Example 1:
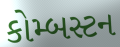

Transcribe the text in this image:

કોમ્બસ્ટન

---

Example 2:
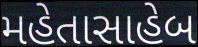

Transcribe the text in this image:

મહેતાસાહેબ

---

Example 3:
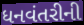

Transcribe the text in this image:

ધનવંતરીની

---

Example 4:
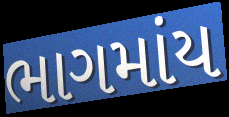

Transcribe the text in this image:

ભાગમાંય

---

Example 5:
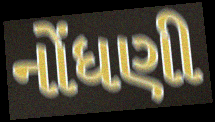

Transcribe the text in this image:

નોંધણી